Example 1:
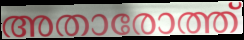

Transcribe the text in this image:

അതാരോത്ത്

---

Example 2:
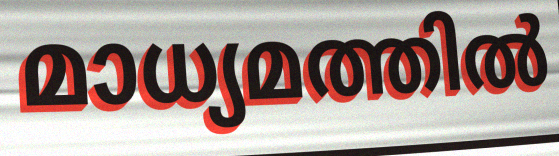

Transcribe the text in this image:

മാധ്യമത്തിൽ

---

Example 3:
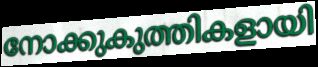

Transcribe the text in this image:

നോക്കുകുത്തികളായി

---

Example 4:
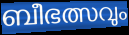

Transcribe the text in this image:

ബീഭത്സവും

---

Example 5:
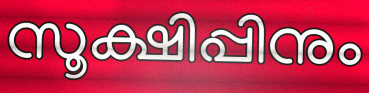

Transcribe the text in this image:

സൂക്ഷിപ്പിനും